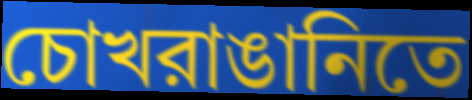
চোখরাঙানিতে